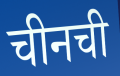
चीनची